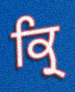
ਕ੍ਰਿ